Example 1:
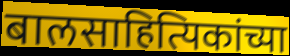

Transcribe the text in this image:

बालसाहित्यिकांच्या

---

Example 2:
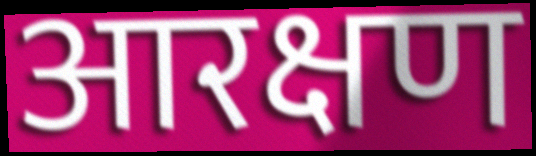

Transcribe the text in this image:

आरक्षण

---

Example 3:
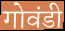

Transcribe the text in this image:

गोवंडी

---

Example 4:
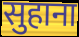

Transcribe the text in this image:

सुहाना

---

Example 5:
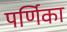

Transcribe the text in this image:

पर्णिका